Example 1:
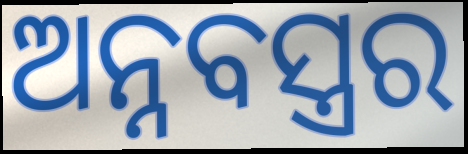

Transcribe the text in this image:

ଅନ୍ନବସ୍ତ୍ରର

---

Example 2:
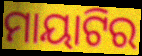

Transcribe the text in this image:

ମାୟାଟିର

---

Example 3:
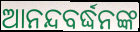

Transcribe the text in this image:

ଆନନ୍ଦବର୍ଦ୍ଧନଙ୍କ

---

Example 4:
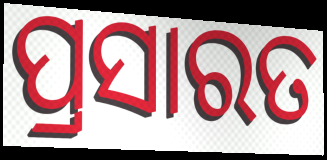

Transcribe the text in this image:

ପ୍ରସାରତ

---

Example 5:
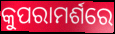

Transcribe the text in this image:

କୁପରାମର୍ଶରେ